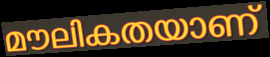
മൗലികതയാണ്